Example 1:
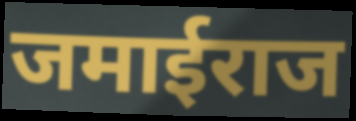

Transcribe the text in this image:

जमाईराज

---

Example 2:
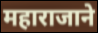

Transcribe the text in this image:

महाराजाने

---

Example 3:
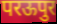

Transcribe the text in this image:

परऊपुर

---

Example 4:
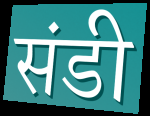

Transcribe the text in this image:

संडी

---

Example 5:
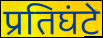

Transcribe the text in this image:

प्रतिघंटे